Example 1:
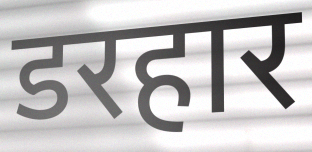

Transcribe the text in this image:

डरहार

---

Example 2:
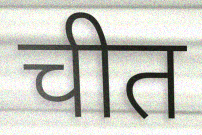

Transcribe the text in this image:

चीत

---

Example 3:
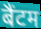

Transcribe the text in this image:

बैंटम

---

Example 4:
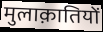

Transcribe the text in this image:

मुलाक़ातियों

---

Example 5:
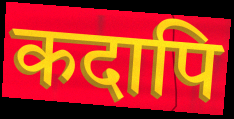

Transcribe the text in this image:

कदापि